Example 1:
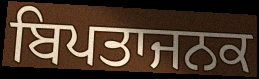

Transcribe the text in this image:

ਬਿਪਤਾਜਨਕ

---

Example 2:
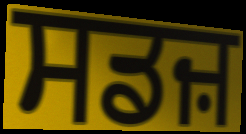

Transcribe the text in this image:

ਸਡਜ਼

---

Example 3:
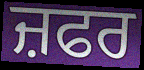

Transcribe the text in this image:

ਜ਼ਫਰ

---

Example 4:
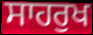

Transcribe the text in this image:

ਸਾਹਰੁਖ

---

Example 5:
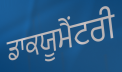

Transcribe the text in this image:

ਡਾਕਯੂਮੈਂਟਰੀ